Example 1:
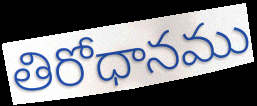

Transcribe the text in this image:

తిరోధానము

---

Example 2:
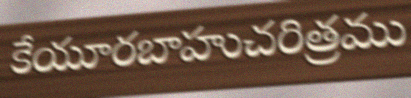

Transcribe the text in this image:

కేయూరబాహుచరిత్రము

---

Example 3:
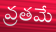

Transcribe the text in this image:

వ్రతమే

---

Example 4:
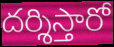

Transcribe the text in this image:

దర్శిస్తారో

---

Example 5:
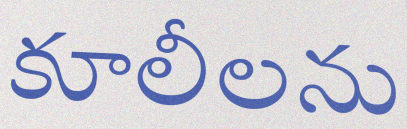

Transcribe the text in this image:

కూలీలను